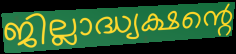
ജില്ലാദ്ധ്യക്ഷന്റെ